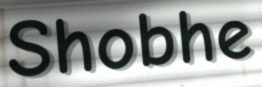
Shobhe